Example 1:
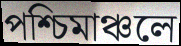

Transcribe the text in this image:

পশ্চিমাঞ্চলে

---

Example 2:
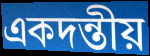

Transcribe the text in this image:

একদন্তীয়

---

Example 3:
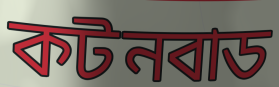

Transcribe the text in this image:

কটনবাড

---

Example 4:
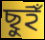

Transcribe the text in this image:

ছুইঁ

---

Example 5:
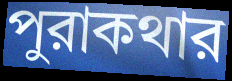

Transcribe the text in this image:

পুরাকথার